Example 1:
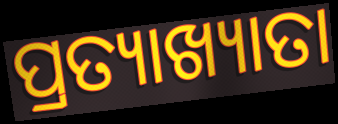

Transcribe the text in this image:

ପ୍ରତ୍ୟାଖ୍ୟାତା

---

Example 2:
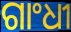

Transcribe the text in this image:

ଗାଂଧୀ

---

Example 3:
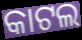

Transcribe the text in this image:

କାଟଲ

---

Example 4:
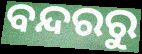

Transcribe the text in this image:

ବନ୍ଦରରୁ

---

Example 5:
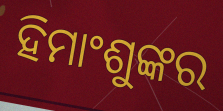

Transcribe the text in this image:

ହିମାଂଶୁଙ୍କର